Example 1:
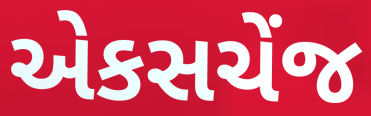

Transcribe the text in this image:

એકસચેંજ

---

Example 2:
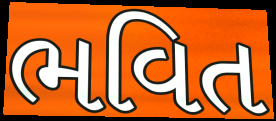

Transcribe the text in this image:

ભવિત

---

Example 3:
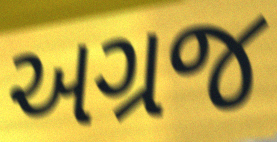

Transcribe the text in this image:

અગ્રજ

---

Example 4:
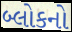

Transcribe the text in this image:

બ્લોકનો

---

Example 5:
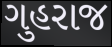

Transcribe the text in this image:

ગુહરાજ